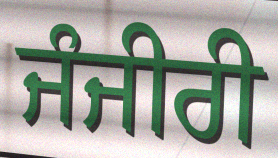
ਜੰਜੀਰੀ